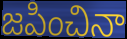
జపించినా